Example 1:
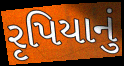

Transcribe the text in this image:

રૃપિયાનું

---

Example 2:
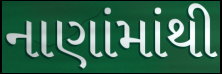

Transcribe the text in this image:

નાણાંમાંથી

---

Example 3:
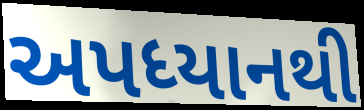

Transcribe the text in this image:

અપધ્યાનથી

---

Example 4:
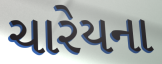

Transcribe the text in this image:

ચારેયના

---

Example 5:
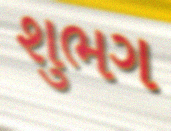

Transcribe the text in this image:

શુભગ